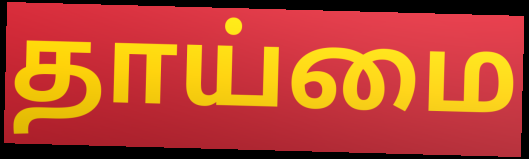
தாய்மை